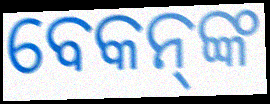
ବେକନ୍‌ଙ୍କ